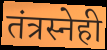
तंत्रस्नेही